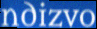
ndizvo